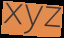
xyz